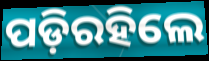
ପଡ଼ିରହିଲେ